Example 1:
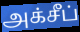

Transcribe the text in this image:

அக்சீப்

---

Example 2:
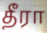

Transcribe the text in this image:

தீரா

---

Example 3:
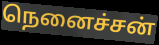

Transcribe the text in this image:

நெனைச்சன்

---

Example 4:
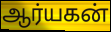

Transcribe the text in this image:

ஆர்யகன்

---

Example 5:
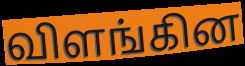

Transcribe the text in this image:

விளங்கின